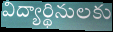
విద్యార్థినులకు